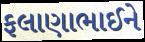
ફલાણાભાઈને